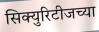
सिक्युरिटीजच्या